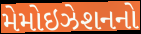
મેમોઇઝેશનનો